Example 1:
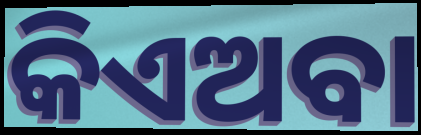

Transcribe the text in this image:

କିଏଅବା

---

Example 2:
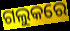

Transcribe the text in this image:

ଗଲୁକରେ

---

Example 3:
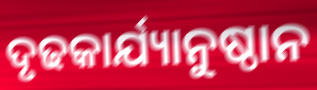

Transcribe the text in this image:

ଦୃଢକାର୍ଯ୍ୟାନୁଷ୍ଠାନ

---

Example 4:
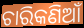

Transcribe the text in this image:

ଚାରିକଣିଆଁ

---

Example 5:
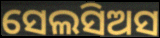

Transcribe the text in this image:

ସେଲସିଅସ